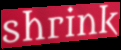
shrink